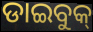
ଡାଇବୁକ୍